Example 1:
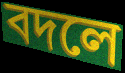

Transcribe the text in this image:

বদলে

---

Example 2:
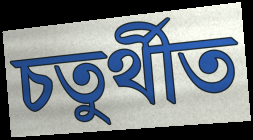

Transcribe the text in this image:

চতুৰ্থীত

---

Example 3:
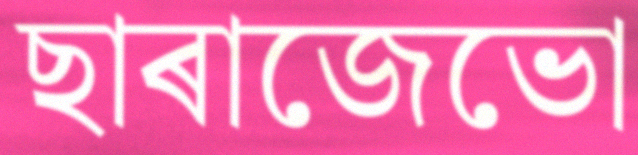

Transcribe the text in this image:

ছাৰাজেভো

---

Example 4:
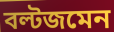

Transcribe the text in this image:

বল্টজমেন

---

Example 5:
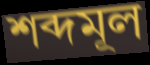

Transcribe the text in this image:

শব্দমূল